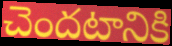
చెందటానికి